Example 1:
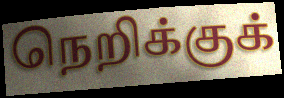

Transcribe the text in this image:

நெறிக்குக்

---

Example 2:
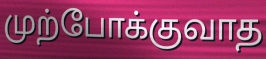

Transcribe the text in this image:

முற்போக்குவாத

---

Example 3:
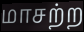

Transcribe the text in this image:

மாசற்ற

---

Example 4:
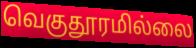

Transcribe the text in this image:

வெகுதூரமில்லை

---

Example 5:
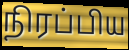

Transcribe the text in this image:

நிரப்பிய